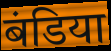
बंडिया